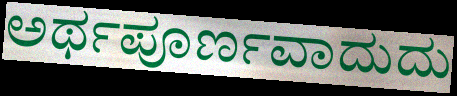
ಅರ್ಥಪೂರ್ಣವಾದುದು